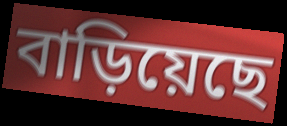
বাড়িয়েছে